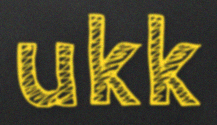
ukk